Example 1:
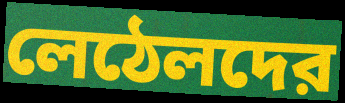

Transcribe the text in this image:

লেঠেলদের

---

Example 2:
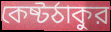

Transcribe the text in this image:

কেষ্টঠাকুর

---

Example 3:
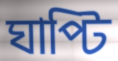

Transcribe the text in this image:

ঘাপ্টি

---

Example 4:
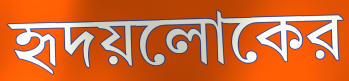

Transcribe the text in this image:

হৃদয়লোকের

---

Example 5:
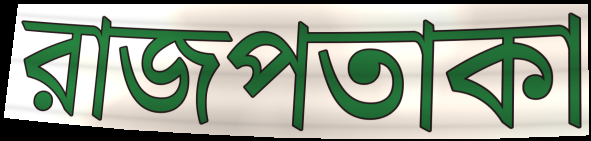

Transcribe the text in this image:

রাজপতাকা